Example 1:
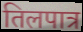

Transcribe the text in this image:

तिलपात्र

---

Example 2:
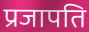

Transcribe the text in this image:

प्रजापति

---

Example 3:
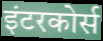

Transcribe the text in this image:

इंटरकोर्स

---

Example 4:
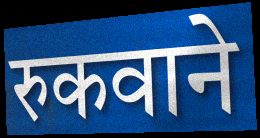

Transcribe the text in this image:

रुकवाने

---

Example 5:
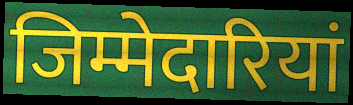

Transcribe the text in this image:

जिम्मेदारियां